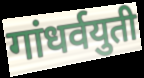
गांधर्वयुती